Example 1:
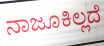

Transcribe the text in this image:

ನಾಜೂಕಿಲ್ಲದೆ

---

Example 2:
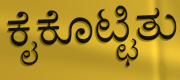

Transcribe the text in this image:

ಕೈಕೊಟ್ಟಿತು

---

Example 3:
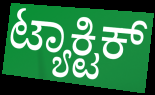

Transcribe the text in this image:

ಟ್ಯಾಕ್ಟಿಕ್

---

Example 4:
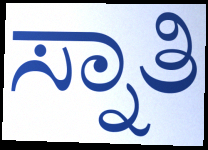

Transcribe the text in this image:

ಸ್ನಾತಿ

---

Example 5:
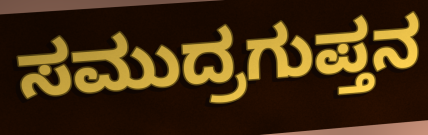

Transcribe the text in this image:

ಸಮುದ್ರಗುಪ್ತನ